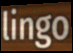
lingo